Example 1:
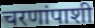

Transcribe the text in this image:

चरणांपाशी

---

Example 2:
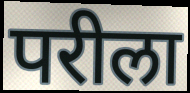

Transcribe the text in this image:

परीला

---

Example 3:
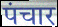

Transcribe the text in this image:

पंचार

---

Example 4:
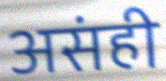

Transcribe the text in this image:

असंही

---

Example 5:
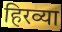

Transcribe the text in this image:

हिरव्या